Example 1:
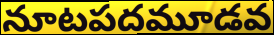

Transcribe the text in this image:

నూటపదమూడవ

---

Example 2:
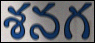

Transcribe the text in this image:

శనగ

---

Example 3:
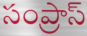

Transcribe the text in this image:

సంప్రాస్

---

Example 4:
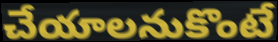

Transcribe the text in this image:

చేయాలనుకొంటే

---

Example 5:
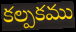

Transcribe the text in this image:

కల్పకము